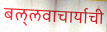
बल्लवाचार्याची